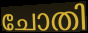
ചോതി